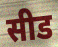
सीड